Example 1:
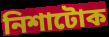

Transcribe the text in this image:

নিশাটোক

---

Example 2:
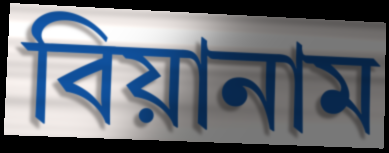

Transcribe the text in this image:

বিয়ানাম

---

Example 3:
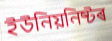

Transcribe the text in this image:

ইউনিয়নিষ্টৰ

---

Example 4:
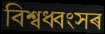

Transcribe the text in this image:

বিশ্বধ্বংসৰ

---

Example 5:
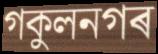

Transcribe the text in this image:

গকুলনগৰ